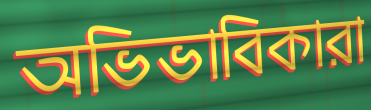
অভিভাবিকারা